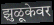
झुळूकेवर